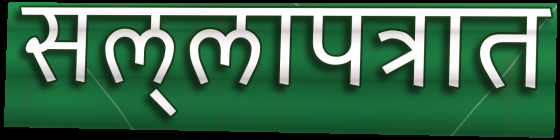
सल्लापत्रात